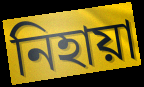
নিহায়া